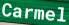
Carmel